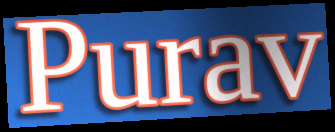
Purav